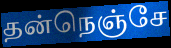
தன்நெஞ்சே